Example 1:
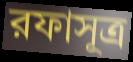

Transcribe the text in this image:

রফাসূত্র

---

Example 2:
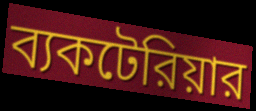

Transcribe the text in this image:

ব্যকটেরিয়ার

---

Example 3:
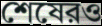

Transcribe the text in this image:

শেষেরও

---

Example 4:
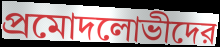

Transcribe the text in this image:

প্রমোদলোভীদের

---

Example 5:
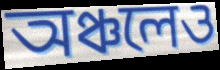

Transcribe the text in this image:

অঞ্চলেও